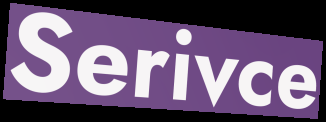
Serivce